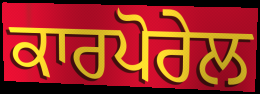
ਕਾਰਪੋਰੇਲ